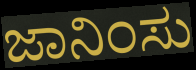
ಜಾನಿಂಸು